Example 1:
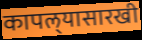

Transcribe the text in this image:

कापल्यासारखी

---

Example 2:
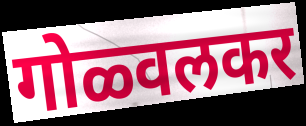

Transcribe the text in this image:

गोळ्वलकर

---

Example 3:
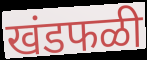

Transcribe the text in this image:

खंडफळी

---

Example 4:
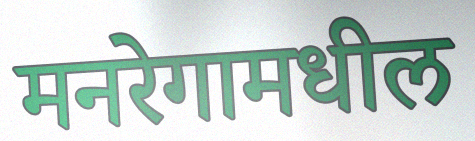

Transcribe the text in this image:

मनरेगामधील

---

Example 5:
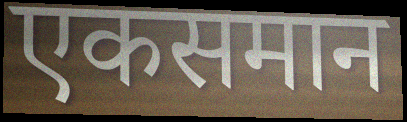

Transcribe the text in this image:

एकसमान